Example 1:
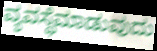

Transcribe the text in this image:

ವ್ಯವಸ್ಥೆಮಾಡುವುದು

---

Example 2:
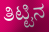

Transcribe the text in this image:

ತಿಟ್ಟಿನ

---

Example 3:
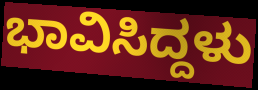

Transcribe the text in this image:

ಭಾವಿಸಿದ್ದಳು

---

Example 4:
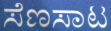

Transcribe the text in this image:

ಸೆಣಸಾಟ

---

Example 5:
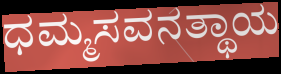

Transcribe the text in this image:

ಧಮ್ಮಸವನತ್ಥಾಯ